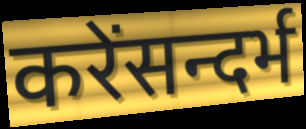
करेंसन्दर्भ